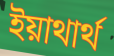
ইয়াথার্থ